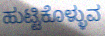
ಹುಟ್ಟಿಕೊಳ್ಳುವ